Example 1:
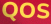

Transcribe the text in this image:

QOS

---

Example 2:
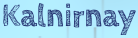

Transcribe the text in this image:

Kalnirnay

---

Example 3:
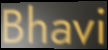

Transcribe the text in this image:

Bhavi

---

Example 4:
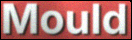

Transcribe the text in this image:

Mould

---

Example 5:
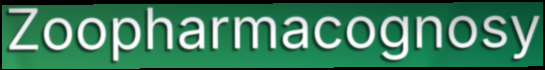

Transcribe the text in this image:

Zoopharmacognosy